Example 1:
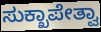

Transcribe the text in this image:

ಸುಕ್ಖಾಪೇತ್ವಾ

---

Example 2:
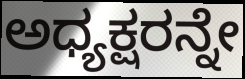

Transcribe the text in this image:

ಅಧ್ಯಕ್ಷರನ್ನೇ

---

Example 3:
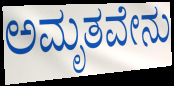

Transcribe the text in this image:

ಅಮೃತವೇನು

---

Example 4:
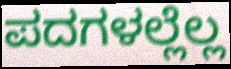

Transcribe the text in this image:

ಪದಗಳಲ್ಲೆಲ್ಲ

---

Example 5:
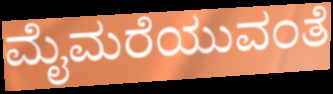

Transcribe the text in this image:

ಮೈಮರೆಯುವಂತೆ